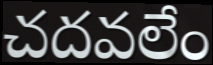
చదవలేం